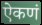
ऐकणं